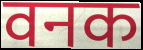
वनक